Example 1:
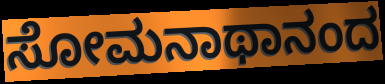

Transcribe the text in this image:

ಸೋಮನಾಥಾನಂದ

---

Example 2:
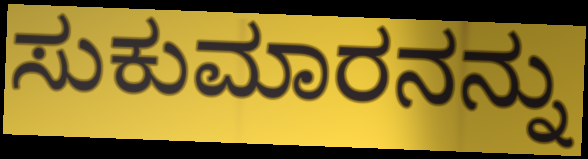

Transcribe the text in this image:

ಸುಕುಮಾರನನ್ನು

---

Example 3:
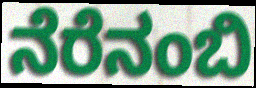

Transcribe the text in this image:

ನೆರೆನಂಬಿ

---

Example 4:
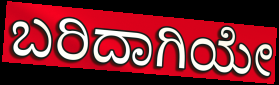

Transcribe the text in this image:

ಬರಿದಾಗಿಯೇ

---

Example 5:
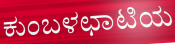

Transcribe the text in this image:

ಕುಂಬಳಛಾಟಿಯ